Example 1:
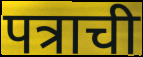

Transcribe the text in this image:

पत्राची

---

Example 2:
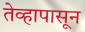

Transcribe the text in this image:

तेव्हापासून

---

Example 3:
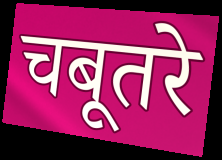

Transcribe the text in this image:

चबूतरे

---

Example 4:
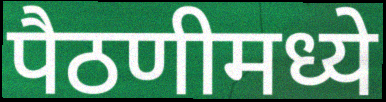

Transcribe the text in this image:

पैठणीमध्ये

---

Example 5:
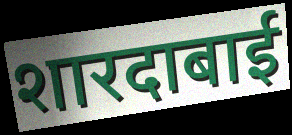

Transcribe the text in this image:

शारदाबाई